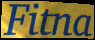
Fitna